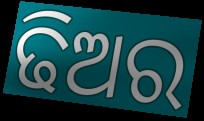
ଢିଅର